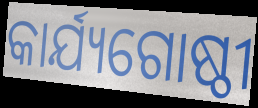
କାର୍ଯ୍ୟଗୋଷ୍ଠୀ